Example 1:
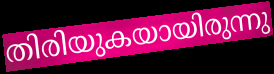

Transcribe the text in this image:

തിരിയുകയായിരുന്നു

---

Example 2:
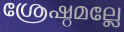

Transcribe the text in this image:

ശ്രേഷ്ഠമല്ലേ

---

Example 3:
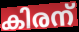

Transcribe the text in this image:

കിരന്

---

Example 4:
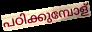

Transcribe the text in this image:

പഠിക്കുമ്പോള്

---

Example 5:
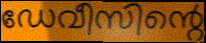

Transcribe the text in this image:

ഡേവീസിന്റെ